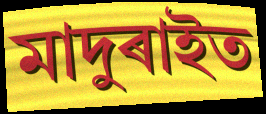
মাদুৰাইত